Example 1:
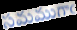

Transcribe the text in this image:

సమముగాఁ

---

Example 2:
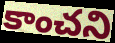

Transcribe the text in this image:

కాంచని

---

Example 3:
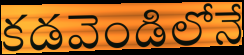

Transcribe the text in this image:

కడవెండిలోనే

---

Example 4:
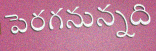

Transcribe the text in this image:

పెరగనున్నది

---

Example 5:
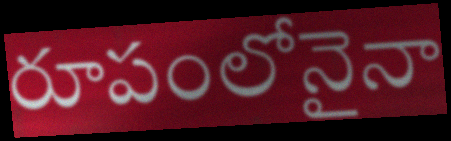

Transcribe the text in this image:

రూపంలోనైనా